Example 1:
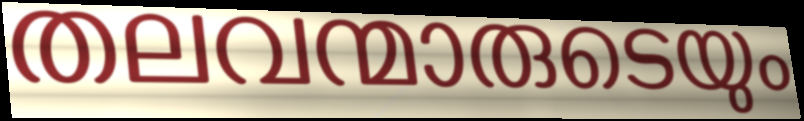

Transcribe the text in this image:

തലവന്മാരുടെയും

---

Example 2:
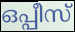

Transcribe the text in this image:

ഒപ്പീസ്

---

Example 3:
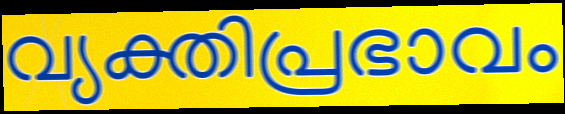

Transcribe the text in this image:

വ്യക്തിപ്രഭാവം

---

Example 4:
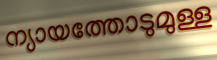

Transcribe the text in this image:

ന്യായത്തോടുമുള്ള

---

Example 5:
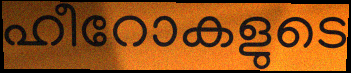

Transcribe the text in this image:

ഹീറോകളുടെ